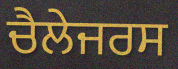
ਚੈਲੇਜਰਸ